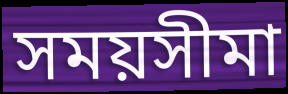
সময়সীমা